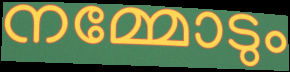
നമ്മോടും